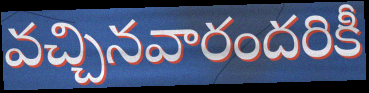
వచ్చినవారందరికీ